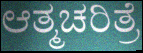
ಆತ್ಮಚರಿತ್ರೆ